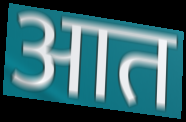
आत